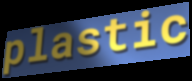
plastic